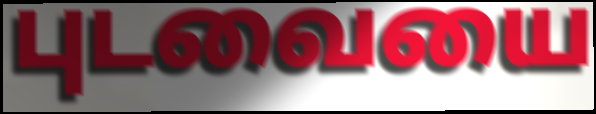
புடவையை